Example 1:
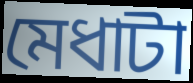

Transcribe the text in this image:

মেধাটা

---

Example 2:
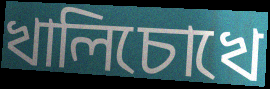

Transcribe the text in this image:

খালিচোখে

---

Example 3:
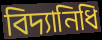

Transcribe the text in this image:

বিদ্যানিধি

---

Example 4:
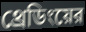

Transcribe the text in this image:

থ্রেডিংয়ের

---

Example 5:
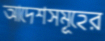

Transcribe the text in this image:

আদেশসমূহের